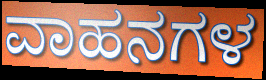
ವಾಹನಗಳ